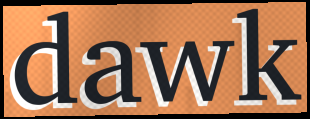
dawk